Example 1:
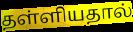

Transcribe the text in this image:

தள்ளியதால்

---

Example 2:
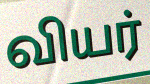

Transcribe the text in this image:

வியர்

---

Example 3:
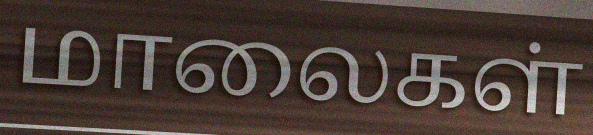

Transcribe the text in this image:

மாலைகள்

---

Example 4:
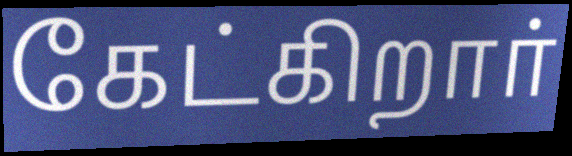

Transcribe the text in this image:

கேட்கிறார்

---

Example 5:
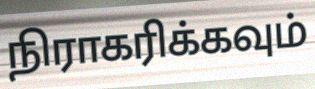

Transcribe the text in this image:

நிராகரிக்கவும்